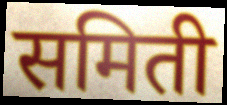
समिती